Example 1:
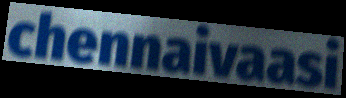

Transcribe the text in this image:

chennaivaasi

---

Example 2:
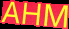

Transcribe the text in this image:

AHM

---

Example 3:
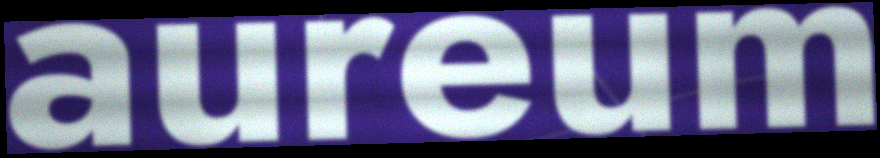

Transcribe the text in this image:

aureum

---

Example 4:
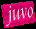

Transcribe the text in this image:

juvo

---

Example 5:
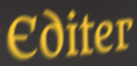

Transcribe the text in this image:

Editer